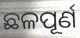
ଛଳପୂର୍ଣ